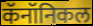
कॅनॉनिकल